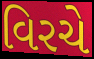
વિરચે